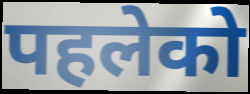
पहलेको